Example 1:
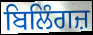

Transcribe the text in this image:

ਬਿਲਿੰਗਜ਼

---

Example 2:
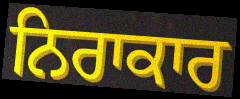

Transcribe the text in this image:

ਨਿਰਾਕਾਰ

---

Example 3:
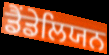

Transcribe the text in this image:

ਡੈਂਡੇਲਿਯਨ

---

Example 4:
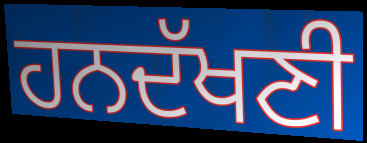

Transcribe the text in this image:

ਹਨਦੱਖਣੀ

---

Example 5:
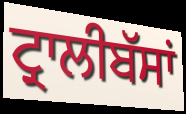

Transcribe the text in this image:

ਟ੍ਰਾਲੀਬੱਸਾਂ